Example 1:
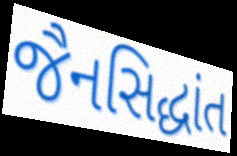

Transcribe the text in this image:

જૈનસિદ્ધાંત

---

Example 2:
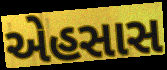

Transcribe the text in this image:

એહસાસ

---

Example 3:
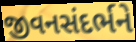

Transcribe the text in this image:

જીવનસંદર્ભને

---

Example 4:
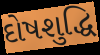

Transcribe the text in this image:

દોષશુદ્ધિ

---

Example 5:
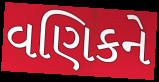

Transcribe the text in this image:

વણિકને